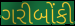
ગરીબોંકી